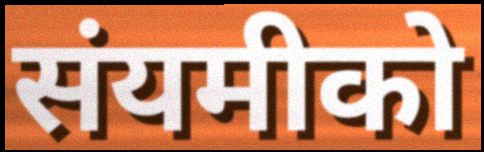
संयमीको